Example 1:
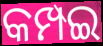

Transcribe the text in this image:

କମ୍ପଇ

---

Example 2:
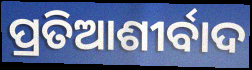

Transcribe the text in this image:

ପ୍ରତିଆଶୀର୍ବାଦ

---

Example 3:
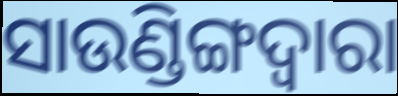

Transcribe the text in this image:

ସାଉଣ୍ଡିଙ୍ଗଦ୍ୱାରା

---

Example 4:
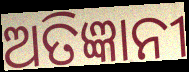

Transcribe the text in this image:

ଅତିଜ୍ଞାନୀ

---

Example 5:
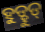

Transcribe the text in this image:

ହୁଡ୍ହୁଡ୍